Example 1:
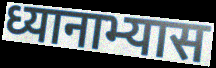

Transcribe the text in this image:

ध्यानाभ्यास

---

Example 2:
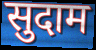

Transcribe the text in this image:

सुदाम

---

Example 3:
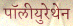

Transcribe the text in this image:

पॉलीयुरेथेन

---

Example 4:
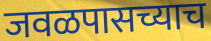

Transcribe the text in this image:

जवळपासच्याच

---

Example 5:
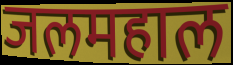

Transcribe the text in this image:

जलमहाल